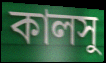
কালসু